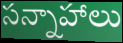
సన్నాహాలు